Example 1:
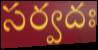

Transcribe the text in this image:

సర్వదః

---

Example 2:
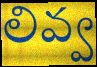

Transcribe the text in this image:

లివ్వ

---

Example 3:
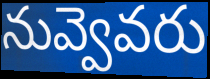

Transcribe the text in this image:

నువ్వెవరు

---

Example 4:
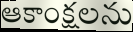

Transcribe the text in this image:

ఆకాంక్షలను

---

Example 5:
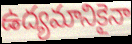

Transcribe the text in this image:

ఉద్యమానికైనా